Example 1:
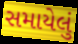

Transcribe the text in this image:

સમાયેલું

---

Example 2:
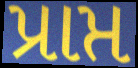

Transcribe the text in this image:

પ્રાપ્ત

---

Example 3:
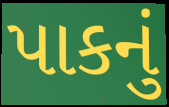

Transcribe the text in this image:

પાકનું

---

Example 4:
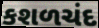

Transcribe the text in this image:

કશળચંદ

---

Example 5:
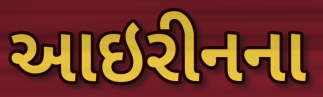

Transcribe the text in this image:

આઇરીનના